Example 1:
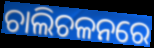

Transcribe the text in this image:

ଚାଲିଚଳନରେ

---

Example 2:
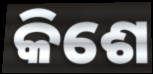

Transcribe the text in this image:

କିଶେ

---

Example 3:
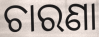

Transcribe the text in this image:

ଚାରଣା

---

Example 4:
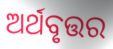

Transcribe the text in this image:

ଅର୍ଥବୃତ୍ତର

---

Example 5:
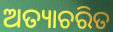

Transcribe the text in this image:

ଅତ୍ୟାଚରିତ